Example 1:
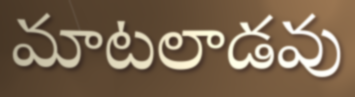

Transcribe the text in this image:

మాటలాడవు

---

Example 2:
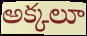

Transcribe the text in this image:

అక్కలూ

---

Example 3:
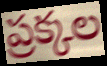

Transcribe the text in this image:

ప్రక్కల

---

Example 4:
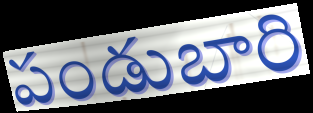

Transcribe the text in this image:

పండుబారి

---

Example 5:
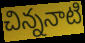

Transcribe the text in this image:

చిన్ననాటి